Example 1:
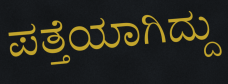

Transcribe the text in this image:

ಪತ್ತೆಯಾಗಿದ್ದು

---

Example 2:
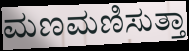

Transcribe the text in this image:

ಮಣಮಣಿಸುತ್ತಾ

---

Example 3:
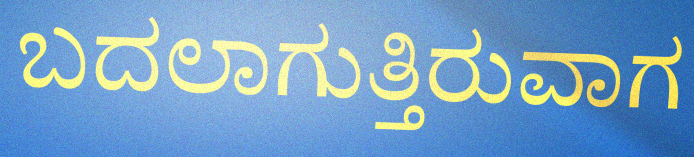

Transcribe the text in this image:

ಬದಲಾಗುತ್ತಿರುವಾಗ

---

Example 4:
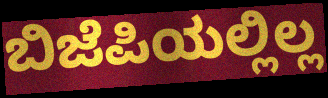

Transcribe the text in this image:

ಬಿಜೆಪಿಯಲ್ಲಿಲ್ಲ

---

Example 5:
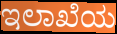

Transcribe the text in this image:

ಇಲಾಖೆಯ